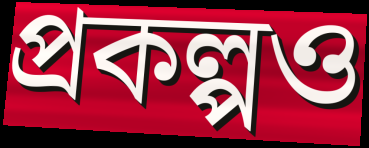
প্রকল্পও